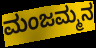
ಮಂಜಮ್ಮನ